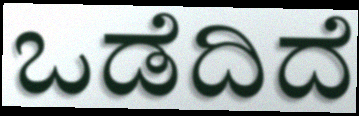
ಒಡೆದಿದೆ